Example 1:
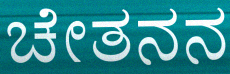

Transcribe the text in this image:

ಚೇತನನ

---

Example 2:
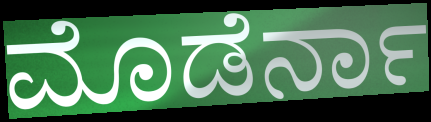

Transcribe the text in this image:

ಮೊಡೆರ್ನಾ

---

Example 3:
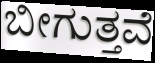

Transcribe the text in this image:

ಬೀಗುತ್ತವೆ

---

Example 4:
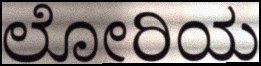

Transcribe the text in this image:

ಲೋರಿಯ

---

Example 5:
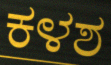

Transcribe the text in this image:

ಕಳಶ